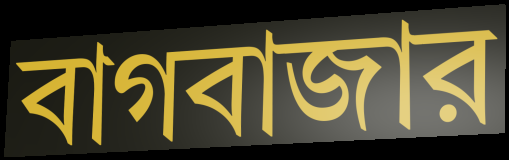
বাগবাজার